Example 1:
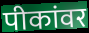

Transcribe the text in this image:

पीकांवर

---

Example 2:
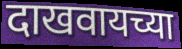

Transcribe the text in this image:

दाखवायच्या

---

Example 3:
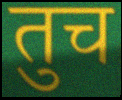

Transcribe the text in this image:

तुच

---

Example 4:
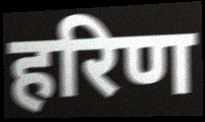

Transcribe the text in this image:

हरिण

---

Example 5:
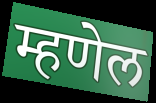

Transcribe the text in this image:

म्हणेल